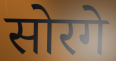
सोरगे